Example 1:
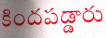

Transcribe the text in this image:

కిందపడ్డారు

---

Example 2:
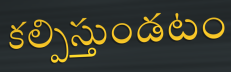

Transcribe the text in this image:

కల్పిస్తుండటం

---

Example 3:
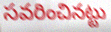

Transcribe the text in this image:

సవరించినట్టు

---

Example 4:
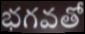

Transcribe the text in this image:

భగవతో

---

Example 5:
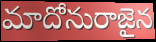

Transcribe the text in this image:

మాదోనురాజైన